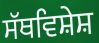
ਸੱਥਵਿਸ਼ੇਸ਼